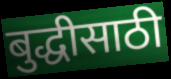
बुद्धीसाठी